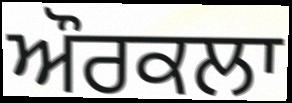
ਔਰਕਲਾ